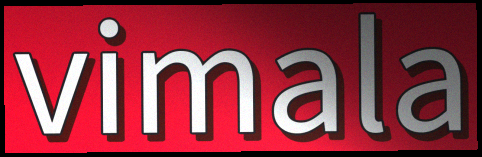
vimala